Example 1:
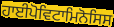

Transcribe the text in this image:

ਹਾਈਪੋਵਿਟਾਮਿਨੋਸਿਸ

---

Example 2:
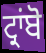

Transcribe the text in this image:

ਟ੍ਰਾਂਬੋ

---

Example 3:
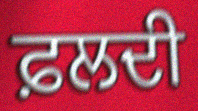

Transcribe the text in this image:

ਫ਼ਲਦੀ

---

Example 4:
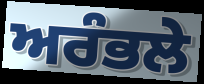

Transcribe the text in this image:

ਅਰੰਭਲੇ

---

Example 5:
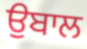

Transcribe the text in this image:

ਉਬਾਲ